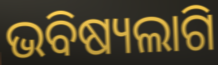
ଭବିଷ୍ୟଲାଗି